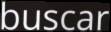
buscar